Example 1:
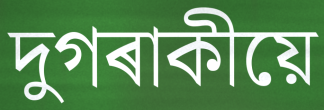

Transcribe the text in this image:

দুগৰাকীয়ে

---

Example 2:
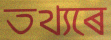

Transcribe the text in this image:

তথ্যৰে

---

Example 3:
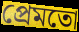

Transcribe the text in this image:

প্ৰেমতো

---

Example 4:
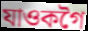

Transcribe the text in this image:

যাওকগৈ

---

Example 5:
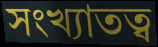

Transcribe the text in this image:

সংখ্যাতত্ব